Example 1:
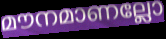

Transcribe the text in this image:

മൗനമാണല്ലോ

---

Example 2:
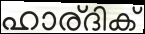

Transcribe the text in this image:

ഹാര്ദിക്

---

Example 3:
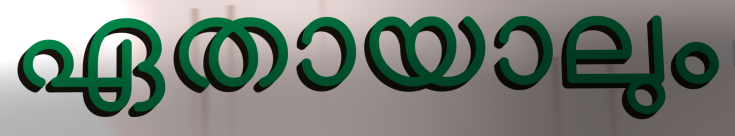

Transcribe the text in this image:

ഏതായാലും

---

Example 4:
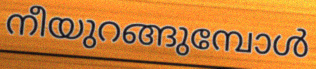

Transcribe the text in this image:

നീയുറങ്ങുമ്പോൾ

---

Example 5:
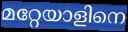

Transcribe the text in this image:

മറ്റേയാളിനെ